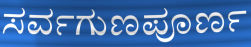
ಸರ್ವಗುಣಪೂರ್ಣ